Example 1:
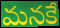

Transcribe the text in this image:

మనకే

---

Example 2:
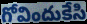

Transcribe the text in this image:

గోవిందుకేసి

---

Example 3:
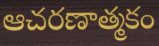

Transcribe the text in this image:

ఆచరణాత్మకం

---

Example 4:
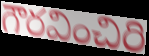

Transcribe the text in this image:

గౌరవించిరి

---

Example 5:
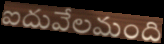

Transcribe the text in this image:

ఐదువేలమంది